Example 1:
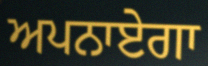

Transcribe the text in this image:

ਅਪਨਾਏਗਾ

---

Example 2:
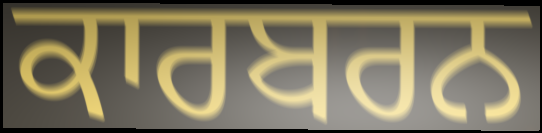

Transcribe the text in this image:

ਕਾਰਬਰਨ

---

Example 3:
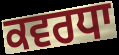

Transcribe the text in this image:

ਕਵਰਧਾ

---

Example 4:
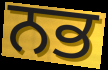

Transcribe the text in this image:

ਨਭ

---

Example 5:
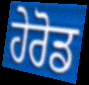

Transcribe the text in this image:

ਹੇਰੋਡ